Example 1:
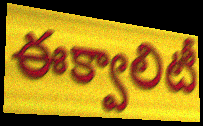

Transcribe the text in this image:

ఈక్వాలిటీ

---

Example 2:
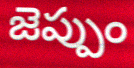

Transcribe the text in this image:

జెప్పుం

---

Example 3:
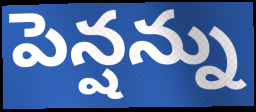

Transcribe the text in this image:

పెన్షన్ను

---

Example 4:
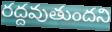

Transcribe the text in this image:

రద్దవుతుందని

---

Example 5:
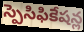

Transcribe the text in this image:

స్పెసిఫికేషన్ల